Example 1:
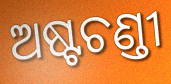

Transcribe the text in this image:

ଅଷ୍ଟଚଣ୍ଡୀ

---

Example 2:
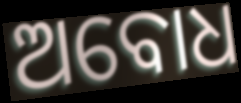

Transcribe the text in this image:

ଅବୋଧ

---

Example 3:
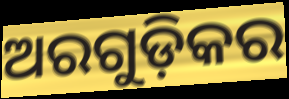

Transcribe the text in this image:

ଅରଗୁଡ଼ିକର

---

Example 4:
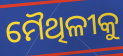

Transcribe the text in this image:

ମୈଥିଳୀକୁ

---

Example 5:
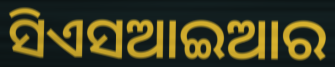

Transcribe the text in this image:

ସିଏସଆଇଆର